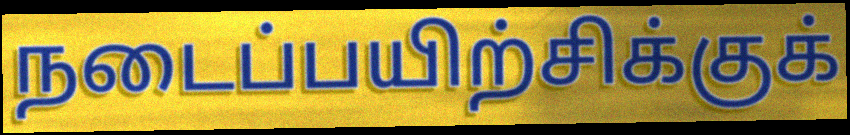
நடைப்பயிற்சிக்குக்